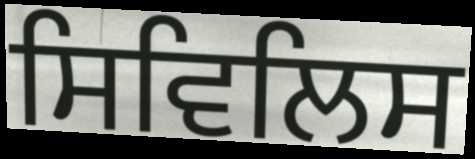
ਸਿਵਿਲਿਸ